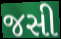
જસી